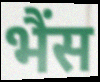
भैंस